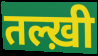
तल्ख़ी